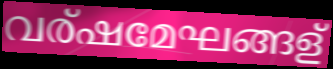
വര്ഷമേഘങ്ങള്